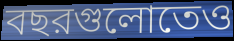
বছরগুলোতেও